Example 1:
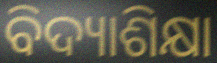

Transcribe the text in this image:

ବିଦ୍ୟାଶିକ୍ଷା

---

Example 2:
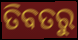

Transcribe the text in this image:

ତିବତରୁ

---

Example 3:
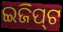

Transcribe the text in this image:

ଇଜିପ୍‌ଟ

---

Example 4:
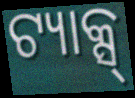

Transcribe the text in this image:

ଟ୍ୟାକ୍ସ୍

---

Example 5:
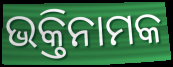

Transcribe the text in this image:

ଭକ୍ତିନାମକ